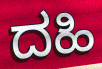
ದಹಿ